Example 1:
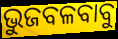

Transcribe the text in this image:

ଭୁଜବଳବାବୁ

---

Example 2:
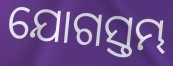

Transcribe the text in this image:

ଯୋଗସ୍ତମ୍ଭ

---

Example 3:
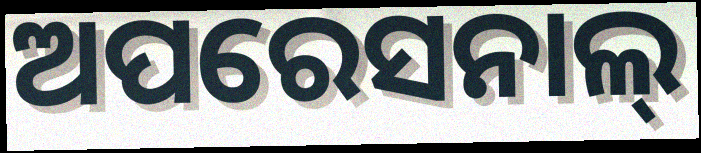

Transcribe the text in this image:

ଅପରେସନାଲ୍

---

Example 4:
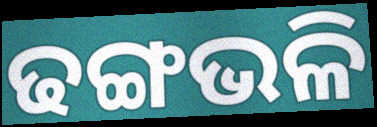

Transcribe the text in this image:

ଢଙ୍ଗଭଳି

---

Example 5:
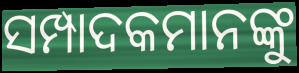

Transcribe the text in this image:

ସମ୍ପାଦକମାନଙ୍କୁ